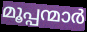
മൂപ്പന്മാർ